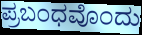
ಪ್ರಬಂಧವೊಂದು